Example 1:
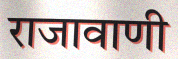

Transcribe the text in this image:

राजावाणी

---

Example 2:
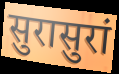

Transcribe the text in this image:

सुरासुरां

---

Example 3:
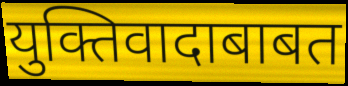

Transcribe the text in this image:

युक्तिवादाबाबत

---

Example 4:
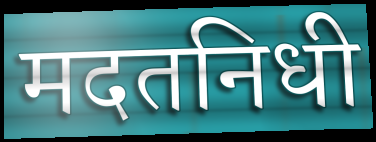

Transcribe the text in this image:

मदतनिधी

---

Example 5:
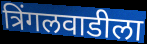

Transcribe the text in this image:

त्रिंगलवाडीला